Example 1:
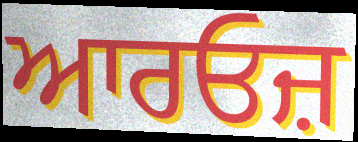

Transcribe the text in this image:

ਆਰਓਜ਼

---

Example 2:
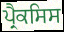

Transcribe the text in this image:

ਪ੍ਰੈਕਸਿਸ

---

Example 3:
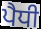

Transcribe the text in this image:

ਪੈਧੀ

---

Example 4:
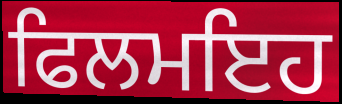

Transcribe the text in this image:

ਫਿਲਮਇਹ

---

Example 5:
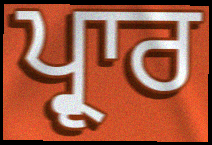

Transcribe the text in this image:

ਪ੍ਰ੍ਵਾਰ